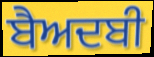
ਬੈਅਦਬੀ